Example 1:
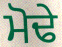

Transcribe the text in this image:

ਮੋਢੇ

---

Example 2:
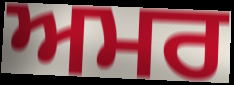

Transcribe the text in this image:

ਅਮਰ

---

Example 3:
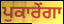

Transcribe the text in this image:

ਪੁਕਾਰੇਂਗਾ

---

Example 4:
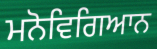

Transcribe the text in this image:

ਮਨੋਵਿਗਿਆਨ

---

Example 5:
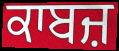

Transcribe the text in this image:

ਕਾਬਜ਼